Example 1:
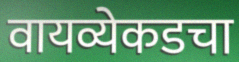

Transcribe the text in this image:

वायव्येकडचा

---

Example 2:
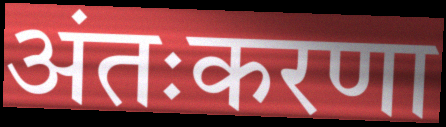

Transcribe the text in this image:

अंतःकरणा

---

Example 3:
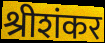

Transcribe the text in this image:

श्रीशंकर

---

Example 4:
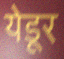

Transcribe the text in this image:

येडूर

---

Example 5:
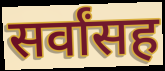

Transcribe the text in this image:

सर्वांसह